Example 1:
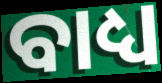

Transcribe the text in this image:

ବାଧ୍ୟ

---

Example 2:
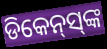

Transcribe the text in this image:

ଡିକେନ୍‌ସ୍‌ଙ୍କ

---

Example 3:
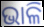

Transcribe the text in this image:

ଭାଳି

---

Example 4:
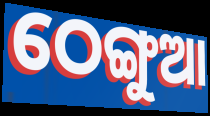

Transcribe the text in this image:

ଠେଙ୍ଗୁଆ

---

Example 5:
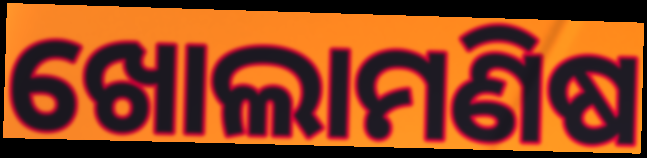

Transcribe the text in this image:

ଖୋଲାମଣିଷ